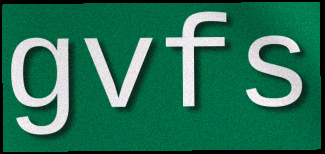
gvfs